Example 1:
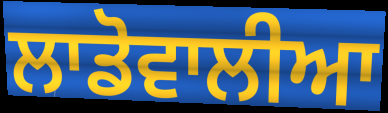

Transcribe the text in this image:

ਲਾਡੋਵਾਲੀਆ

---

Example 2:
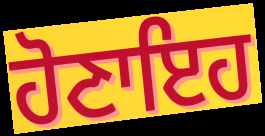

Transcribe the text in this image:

ਹੋਣਾਇਹ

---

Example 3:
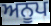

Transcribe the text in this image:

ਅਨੂਪ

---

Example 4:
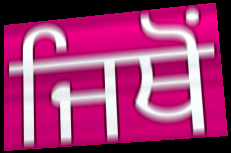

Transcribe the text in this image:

ਜਿਥੋਂ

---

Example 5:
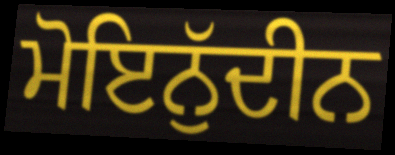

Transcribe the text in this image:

ਮੋਇਨੁੱਦੀਨ